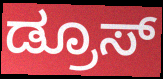
ಡ್ರೂಸ್